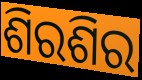
ଶିରଶିର